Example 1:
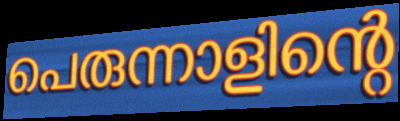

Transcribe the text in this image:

പെരുന്നാളിന്റെ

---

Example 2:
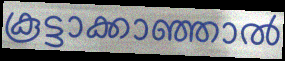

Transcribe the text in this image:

കൂട്ടാക്കാഞ്ഞാൽ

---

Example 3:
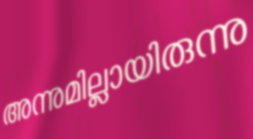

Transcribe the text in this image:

അന്നുമില്ലായിരുന്നു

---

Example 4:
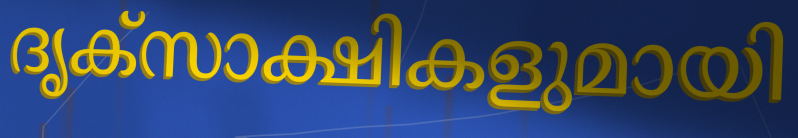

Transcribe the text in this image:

ദൃക്സാക്ഷികളുമായി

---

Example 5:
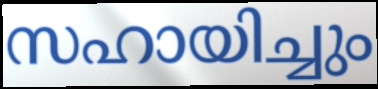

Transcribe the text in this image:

സഹായിച്ചും